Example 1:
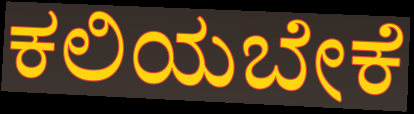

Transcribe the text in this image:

ಕಲಿಯಬೇಕೆ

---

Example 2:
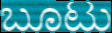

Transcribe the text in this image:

ಬೂಟು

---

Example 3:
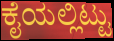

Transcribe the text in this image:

ಕೈಯಲ್ಲಿಟ್ಟು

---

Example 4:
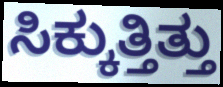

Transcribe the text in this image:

ಸಿಕ್ಕುತ್ತಿತ್ತು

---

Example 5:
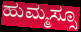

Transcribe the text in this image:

ಹುಮ್ಮಸ್ಸೂ